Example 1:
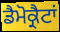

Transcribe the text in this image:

ਡੈਮੋਕ੍ਰੈਟਾਂ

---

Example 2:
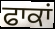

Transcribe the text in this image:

ਫਾਕਾਂ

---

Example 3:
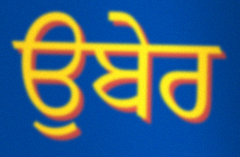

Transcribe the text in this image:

ਉਬੇਰ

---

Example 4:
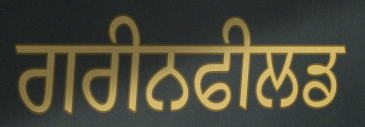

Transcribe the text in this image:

ਗਰੀਨਫੀਲਡ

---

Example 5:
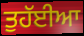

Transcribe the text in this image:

ਤੁਹੱਈਆ